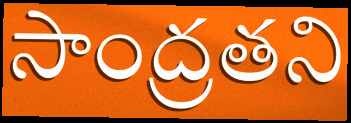
సాంద్రతని